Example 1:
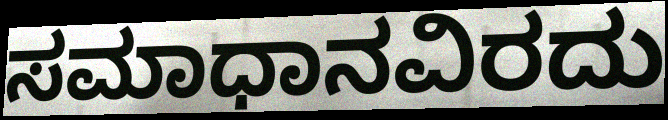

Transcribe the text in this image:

ಸಮಾಧಾನವಿರದು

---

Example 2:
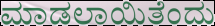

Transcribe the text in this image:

ಮಾಡಲಾಯಿತೆಂದು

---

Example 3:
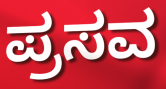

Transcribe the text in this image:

ಪ್ರಸವ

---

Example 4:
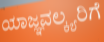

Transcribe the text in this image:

ಯಾಜ್ಞವಲ್ಕ್ಯರಿಗೆ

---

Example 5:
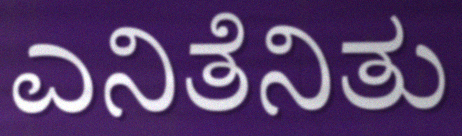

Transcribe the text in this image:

ಎನಿತೆನಿತು